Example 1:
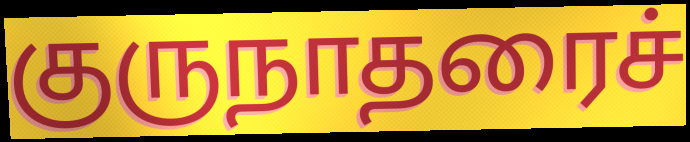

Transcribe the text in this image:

குருநாதரைச்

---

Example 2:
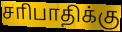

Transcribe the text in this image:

சரிபாதிக்கு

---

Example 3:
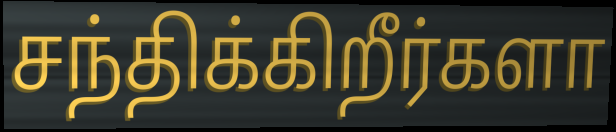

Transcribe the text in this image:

சந்திக்கிறீர்களா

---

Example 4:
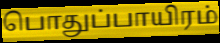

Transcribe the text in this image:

பொதுப்பாயிரம்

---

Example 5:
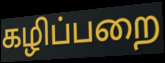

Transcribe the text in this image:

கழிப்பறை